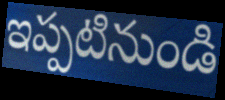
ఇప్పటినుండి